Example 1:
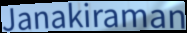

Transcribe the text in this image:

Janakiraman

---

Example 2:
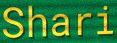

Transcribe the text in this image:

Shari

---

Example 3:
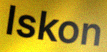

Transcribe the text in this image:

Iskon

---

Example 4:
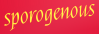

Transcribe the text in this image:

sporogenous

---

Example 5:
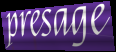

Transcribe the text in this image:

presage